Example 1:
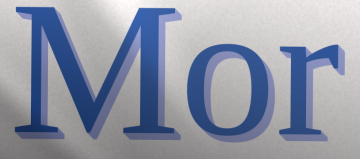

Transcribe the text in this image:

Mor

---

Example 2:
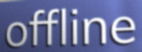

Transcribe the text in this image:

offline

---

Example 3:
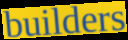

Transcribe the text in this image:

builders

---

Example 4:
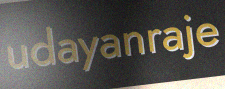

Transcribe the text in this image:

udayanraje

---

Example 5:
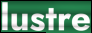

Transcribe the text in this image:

lustre